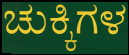
ಚುಕ್ಕಿಗಳ